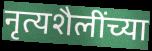
नृत्यशैलींच्या